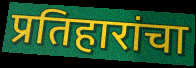
प्रतिहारांचा